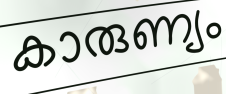
കാരുണ്യം